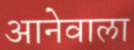
आनेवाला